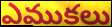
ఎముకలు